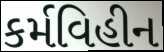
કર્મવિહીન